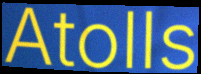
Atolls